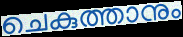
ചെകുത്താനും